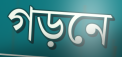
গড়নে